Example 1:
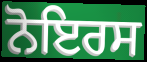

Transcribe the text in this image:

ਨੋਇਰਸ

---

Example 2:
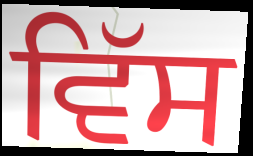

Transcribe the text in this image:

ਵਿੱਸ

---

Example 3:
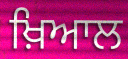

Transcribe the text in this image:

ਖ਼ਿਆਲ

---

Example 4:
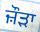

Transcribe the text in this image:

ਜ਼ੌੜਾ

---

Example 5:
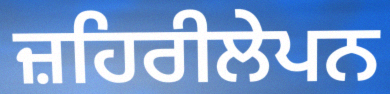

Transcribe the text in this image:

ਜ਼ਹਿਰੀਲੇਪਨ